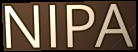
NIPA